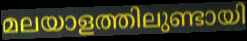
മലയാളത്തിലുണ്ടായി